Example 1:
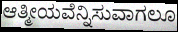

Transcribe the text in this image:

ಆತ್ಮೀಯವೆನ್ನಿಸುವಾಗಲೂ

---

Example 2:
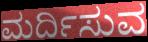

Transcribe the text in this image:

ಮರ್ದಿಸುವ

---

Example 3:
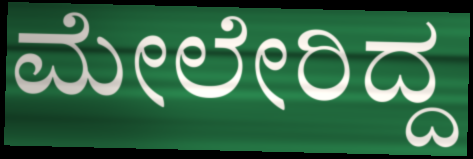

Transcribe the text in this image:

ಮೇಲೇರಿದ್ದ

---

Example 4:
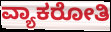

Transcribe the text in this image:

ವ್ಯಾಕರೋತಿ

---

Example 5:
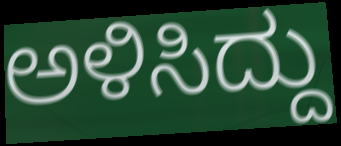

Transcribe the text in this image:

ಅಳಿಸಿದ್ದು